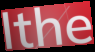
Ithe